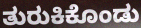
ತುರುಕಿಕೊಂಡು